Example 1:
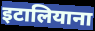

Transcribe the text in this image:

इटालियाना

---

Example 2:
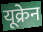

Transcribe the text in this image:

यूक्रेन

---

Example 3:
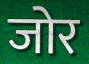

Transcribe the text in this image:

जोर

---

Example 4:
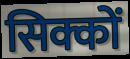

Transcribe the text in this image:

सिक्‍कों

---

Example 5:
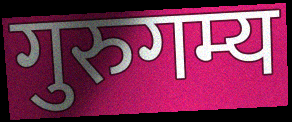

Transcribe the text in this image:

गुरुगम्य